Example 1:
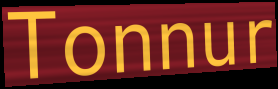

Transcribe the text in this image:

Tonnur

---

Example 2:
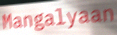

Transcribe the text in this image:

Mangalyaan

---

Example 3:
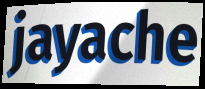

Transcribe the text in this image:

jayache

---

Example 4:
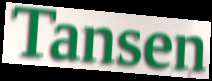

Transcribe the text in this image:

Tansen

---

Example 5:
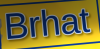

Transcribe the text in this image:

Brhat